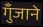
गुँजाने